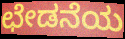
ಛೇಡನೆಯ